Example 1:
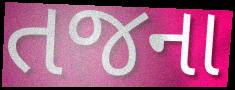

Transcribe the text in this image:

તજના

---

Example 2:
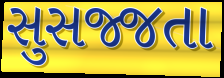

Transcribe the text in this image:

સુસજ્જતા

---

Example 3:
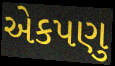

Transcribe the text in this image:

એકપણુ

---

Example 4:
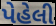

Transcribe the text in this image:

પેહેલી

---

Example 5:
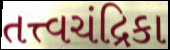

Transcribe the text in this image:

તત્ત્વચંદ્રિકા